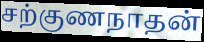
சற்குணநாதன்